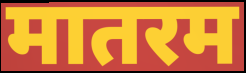
मातरम